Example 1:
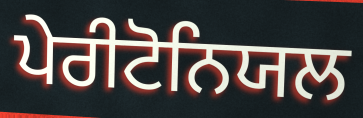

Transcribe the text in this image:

ਪੇਰੀਟੋਨਿਯਲ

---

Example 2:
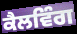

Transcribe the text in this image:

ਕੈਲਵਿੰਗ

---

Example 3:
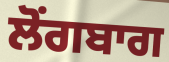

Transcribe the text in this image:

ਲੋਂਗਬਾਗ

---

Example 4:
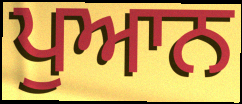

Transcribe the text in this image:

ਪੁਆਨ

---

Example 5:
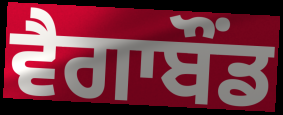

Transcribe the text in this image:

ਵੈਗਾਬੌਂਡ